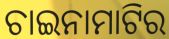
ଚାଇନାମାଟିର